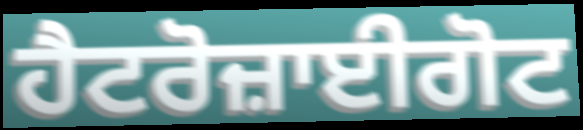
ਹੈਟਰੋਜ਼ਾਈਗੋਟ